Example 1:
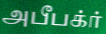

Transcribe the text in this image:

அபீபக்ர்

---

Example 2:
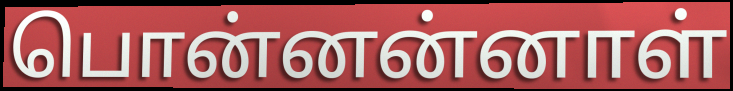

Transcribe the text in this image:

பொன்னன்னாள்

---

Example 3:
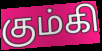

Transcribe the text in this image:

கும்கி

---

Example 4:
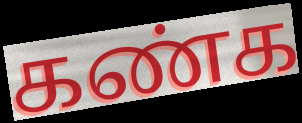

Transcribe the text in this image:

கண்க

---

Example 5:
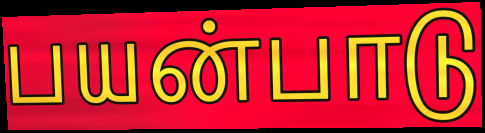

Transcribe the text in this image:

பயன்பாடு